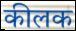
कीलक